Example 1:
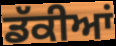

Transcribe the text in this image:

ਡੱਕੀਆਂ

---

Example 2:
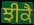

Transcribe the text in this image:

ਝੀਕੈ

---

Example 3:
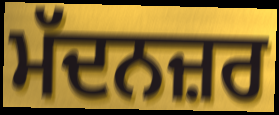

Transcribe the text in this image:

ਮੱਦਨਜ਼ਰ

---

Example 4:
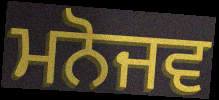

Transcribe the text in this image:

ਮਨੋਜਵ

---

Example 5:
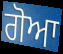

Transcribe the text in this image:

ਗੋਆ